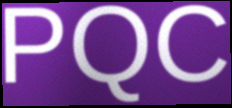
PQC